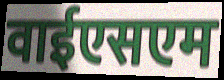
वाईएसएम